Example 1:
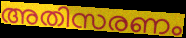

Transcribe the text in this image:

അതിസരണം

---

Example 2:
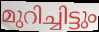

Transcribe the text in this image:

മുറിച്ചിട്ടും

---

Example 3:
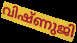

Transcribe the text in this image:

വിഷ്ണുജി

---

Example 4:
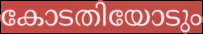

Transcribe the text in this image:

കോടതിയോടും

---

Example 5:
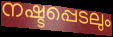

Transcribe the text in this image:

നഷ്ടപ്പെടലും